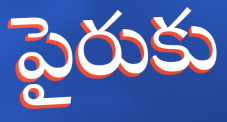
పైరుకు